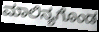
ಮಾಲಿನ್ಯಗೊಂಡ